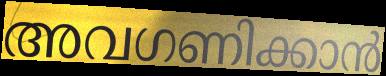
അവഗണിക്കാൻ